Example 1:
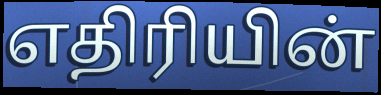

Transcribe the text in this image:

எதிரியின்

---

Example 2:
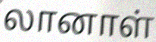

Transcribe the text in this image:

லானாள்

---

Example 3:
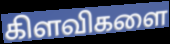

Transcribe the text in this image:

கிளவிகளை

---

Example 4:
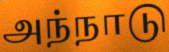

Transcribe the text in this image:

அந்நாடு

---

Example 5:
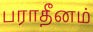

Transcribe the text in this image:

பராதீனம்